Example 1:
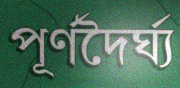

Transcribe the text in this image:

পূর্ণদৈর্ঘ্য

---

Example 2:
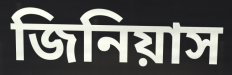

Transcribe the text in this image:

জিনিয়াস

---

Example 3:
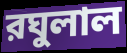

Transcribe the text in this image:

রঘুলাল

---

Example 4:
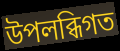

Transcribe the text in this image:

উপলব্ধিগত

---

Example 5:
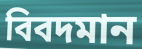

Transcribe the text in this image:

বিবদমান